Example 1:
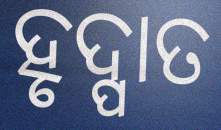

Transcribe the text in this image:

ହୃଦ୍ପାତ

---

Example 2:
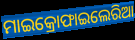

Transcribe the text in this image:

ମାଇକ୍ରୋଫାଇଲେରିଆ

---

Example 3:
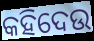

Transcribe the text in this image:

କହିଦେଉ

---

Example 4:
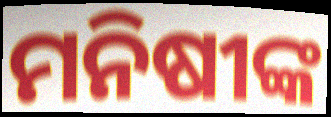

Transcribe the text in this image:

ମନିଷୀଙ୍କ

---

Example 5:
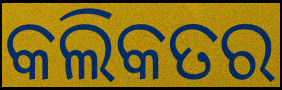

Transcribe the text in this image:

କଲିକତର